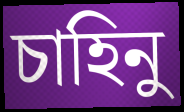
চাহিনু